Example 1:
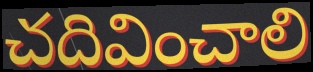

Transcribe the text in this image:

చదివించాలి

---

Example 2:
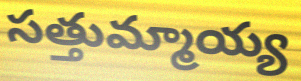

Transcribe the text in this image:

సత్తుమ్మాయ్య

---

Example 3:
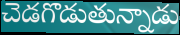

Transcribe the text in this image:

చెడగొడుతున్నాడు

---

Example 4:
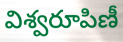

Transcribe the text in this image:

విశ్వరూపిణీ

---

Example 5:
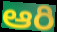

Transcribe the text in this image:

ఆరి